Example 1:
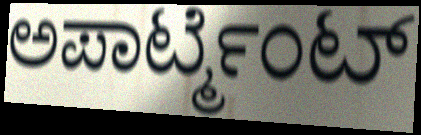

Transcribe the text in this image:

ಅಪಾರ್ಟ್ಮೆಂಟ್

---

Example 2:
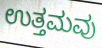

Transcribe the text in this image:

ಉತ್ತಮವು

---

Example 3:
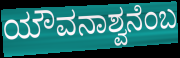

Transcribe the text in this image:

ಯೌವನಾಶ್ವನೆಂಬ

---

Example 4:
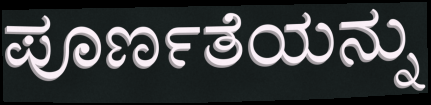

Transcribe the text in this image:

ಪೂರ್ಣತೆಯನ್ನು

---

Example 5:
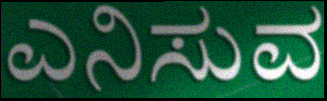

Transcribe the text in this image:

ಎನಿಸುವ